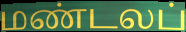
மண்டலப்